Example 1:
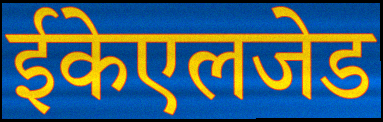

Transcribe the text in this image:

ईकेएलजेड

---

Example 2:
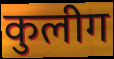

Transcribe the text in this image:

कुलीग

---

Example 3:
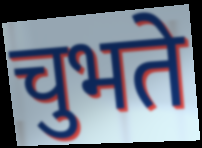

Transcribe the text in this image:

चुभते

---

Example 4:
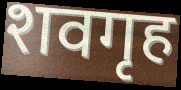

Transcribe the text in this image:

शवगृह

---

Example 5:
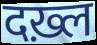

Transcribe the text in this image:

दख़्ल